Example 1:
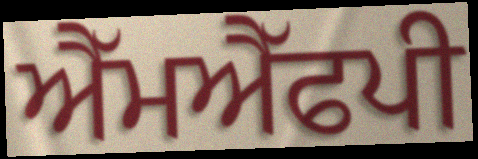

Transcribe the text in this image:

ਐੱਮਐੱਫਪੀ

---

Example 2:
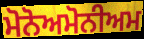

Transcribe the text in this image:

ਮੋਨੋਅਮੋਨੀਅਮ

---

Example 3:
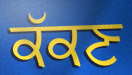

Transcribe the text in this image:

ਕੱਕਣ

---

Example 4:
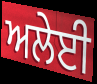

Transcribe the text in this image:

ਅਲੇਈ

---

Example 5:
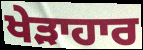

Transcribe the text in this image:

ਖੇੜਾਹਾਰ